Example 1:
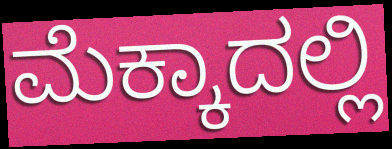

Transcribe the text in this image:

ಮೆಕ್ಕಾದಲ್ಲಿ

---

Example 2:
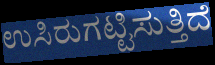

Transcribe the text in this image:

ಉಸಿರುಗಟ್ಟಿಸುತ್ತಿದೆ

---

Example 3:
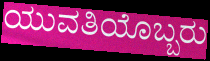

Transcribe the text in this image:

ಯುವತಿಯೊಬ್ಬರು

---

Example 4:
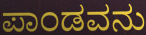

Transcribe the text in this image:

ಪಾಂಡವನು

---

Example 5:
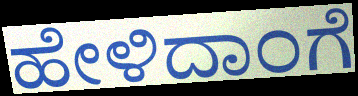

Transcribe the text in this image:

ಹೇಳಿದಾಂಗೆ